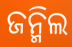
ଜନ୍ମିଲ